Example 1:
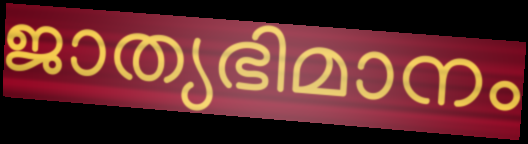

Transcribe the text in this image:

ജാത്യഭിമാനം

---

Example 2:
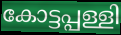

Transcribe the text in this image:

കോട്ടപ്പള്ളി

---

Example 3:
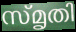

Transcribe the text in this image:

സ്മൃതി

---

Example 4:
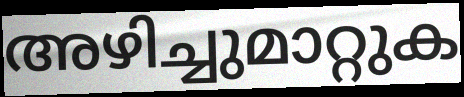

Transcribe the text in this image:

അഴിച്ചുമാറ്റുക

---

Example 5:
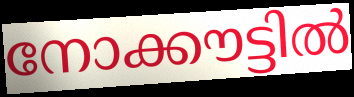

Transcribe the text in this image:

നോക്കൗട്ടിൽ